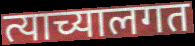
त्याच्यालगत